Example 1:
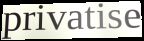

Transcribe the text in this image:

privatise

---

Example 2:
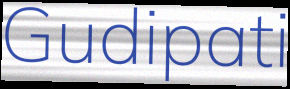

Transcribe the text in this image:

Gudipati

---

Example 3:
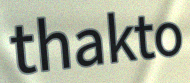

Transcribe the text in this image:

thakto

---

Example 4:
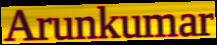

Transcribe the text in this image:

Arunkumar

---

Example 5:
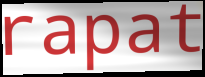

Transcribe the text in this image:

rapat